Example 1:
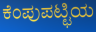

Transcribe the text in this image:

ಕೆಂಪುಪಟ್ಟಿಯ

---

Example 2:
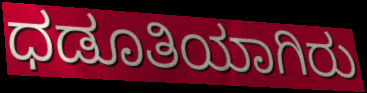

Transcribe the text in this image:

ಧಡೂತಿಯಾಗಿರು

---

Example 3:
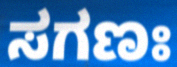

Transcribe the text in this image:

ಸಗಣಃ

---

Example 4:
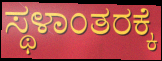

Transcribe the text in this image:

ಸ್ಥಳಾಂತರಕ್ಕೆ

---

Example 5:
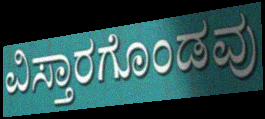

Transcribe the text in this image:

ವಿಸ್ತಾರಗೊಂಡವು